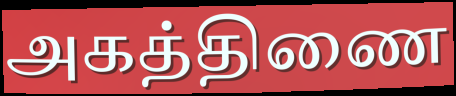
அகத்திணை